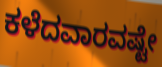
ಕಳೆದವಾರವಷ್ಟೇ